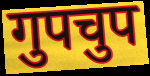
गुपचुप